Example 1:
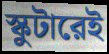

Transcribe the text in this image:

স্কুটারেই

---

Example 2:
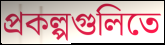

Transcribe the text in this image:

প্রকল্পগুলিতে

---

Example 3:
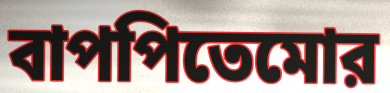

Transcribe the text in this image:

বাপপিতেমোর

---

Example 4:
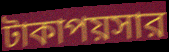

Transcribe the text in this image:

টাকাপয়সার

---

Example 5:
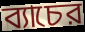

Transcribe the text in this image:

ব্যাচের